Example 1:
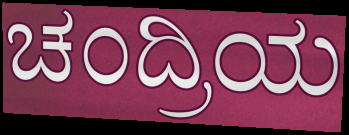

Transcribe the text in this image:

ಚಂದ್ರಿಯ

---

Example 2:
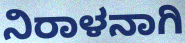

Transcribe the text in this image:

ನಿರಾಳನಾಗಿ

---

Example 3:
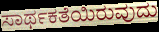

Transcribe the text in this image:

ಸಾರ್ಥಕತೆಯಿರುವುದು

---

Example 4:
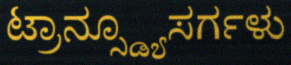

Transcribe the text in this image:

ಟ್ರಾನ್ಸ್ಡ್ಯೂಸರ್ಗಳು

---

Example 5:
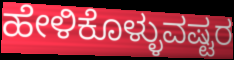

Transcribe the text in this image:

ಹೇಳಿಕೊಳ್ಳುವಷ್ಟರ